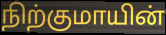
நிற்குமாயின்